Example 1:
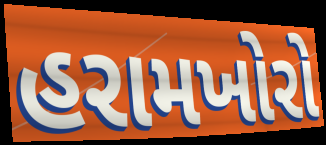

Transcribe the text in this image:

હરામખોરો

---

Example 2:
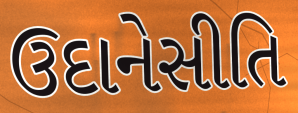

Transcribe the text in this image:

ઉદાનેસીતિ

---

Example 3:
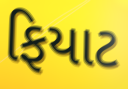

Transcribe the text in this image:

ફિયાટ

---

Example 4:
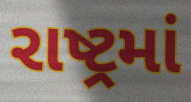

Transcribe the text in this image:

રાષ્ટ્રમાં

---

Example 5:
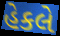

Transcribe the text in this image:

હેકલે